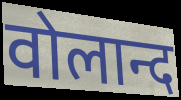
वोलान्द